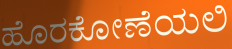
ಹೊರಕೋಣೆಯಲಿ